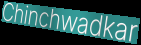
Chinchwadkar